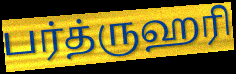
பர்த்ருஹரி